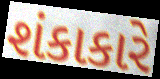
શંકાકારે